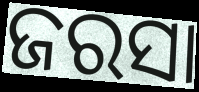
ଜରସା